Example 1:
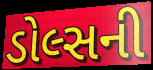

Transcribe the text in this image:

ડોલ્સની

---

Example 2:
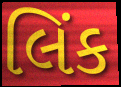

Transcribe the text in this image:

લિંક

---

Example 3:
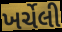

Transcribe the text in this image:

ખર્ચેલી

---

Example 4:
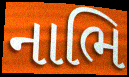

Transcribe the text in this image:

નાભિ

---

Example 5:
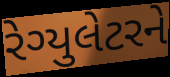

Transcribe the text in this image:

રેગ્યુલેટરને